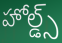
హోల్డ్స్